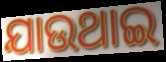
ଯାଉଥାଇ